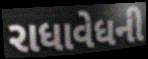
રાધાવેધની